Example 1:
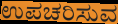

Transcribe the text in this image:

ಉಪಚರಿಸುವ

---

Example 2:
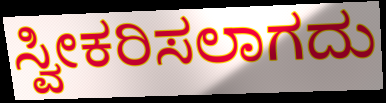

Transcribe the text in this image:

ಸ್ವೀಕರಿಸಲಾಗದು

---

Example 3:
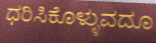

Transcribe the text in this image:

ಧರಿಸಿಕೊಳ್ಳುವದೂ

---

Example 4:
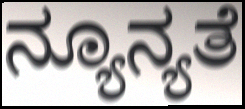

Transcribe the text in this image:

ನ್ಯೂನ್ಯತೆ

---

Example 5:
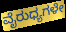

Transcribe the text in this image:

ವೈರುಧ್ಯಗಳೇ